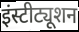
इंस्टीट्यूशन